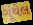
ગૂંથેલ